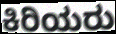
ಕಿರಿಯರು